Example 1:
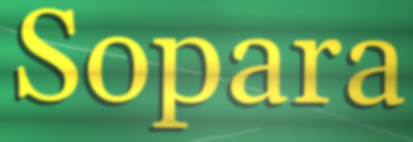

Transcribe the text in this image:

Sopara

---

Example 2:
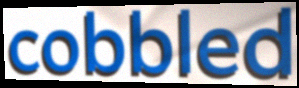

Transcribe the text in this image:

cobbled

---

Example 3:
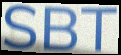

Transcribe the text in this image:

SBT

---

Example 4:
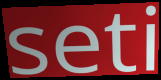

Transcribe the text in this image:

seti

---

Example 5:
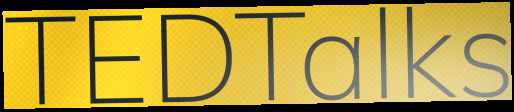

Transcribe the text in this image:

TEDTalks